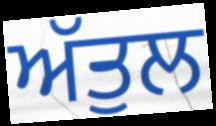
ਅੱਤੁਲ